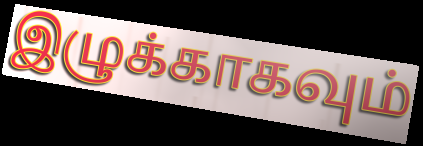
இழுக்காகவும்